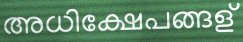
അധിക്ഷേപങ്ങള്